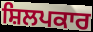
ਸ਼ਿਲਪਕਾਰ